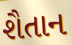
શૈતાન